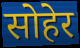
सोहेर